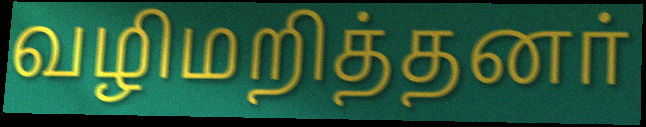
வழிமறித்தனர்